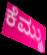
ಕೆಮ್ಮು